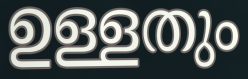
ഉള്ളതും